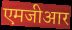
एमजीआर